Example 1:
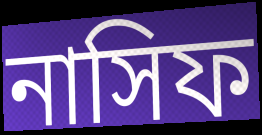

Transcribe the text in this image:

নাসিফ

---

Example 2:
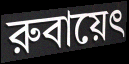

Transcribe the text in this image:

রুবায়েৎ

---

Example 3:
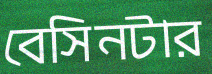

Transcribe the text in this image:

বেসিনটার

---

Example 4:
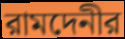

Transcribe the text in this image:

রামদেনীর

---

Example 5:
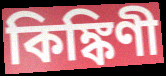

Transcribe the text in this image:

কিঙ্কিণী